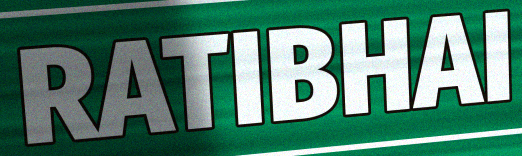
RATIBHAI